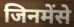
जिनमेंसे